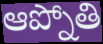
ఆప్నోతి